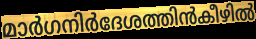
മാർഗനിർദേശത്തിൻകീഴിൽ